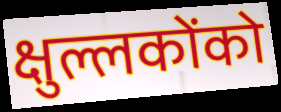
क्षुल्लकोंको